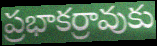
ప్రభాకర్రావుకు